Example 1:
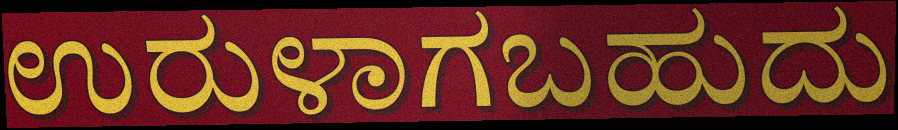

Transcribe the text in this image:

ಉರುಳಾಗಬಹುದು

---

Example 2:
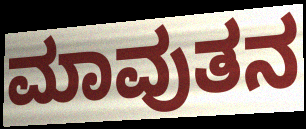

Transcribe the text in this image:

ಮಾವುತನ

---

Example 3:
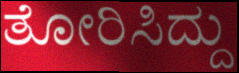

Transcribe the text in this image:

ತೋರಿಸಿದ್ದು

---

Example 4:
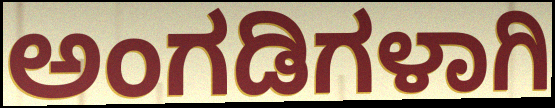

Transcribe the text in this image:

ಅಂಗಡಿಗಳಾಗಿ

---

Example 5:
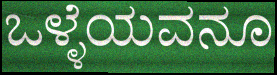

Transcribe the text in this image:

ಒಳ್ಳೆಯವನೂ